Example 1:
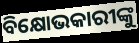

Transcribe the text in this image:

ବିକ୍ଷୋଭକାରୀଙ୍କୁ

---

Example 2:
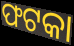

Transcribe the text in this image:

ଫଟକା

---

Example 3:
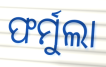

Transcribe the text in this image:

ଫର୍ମୁଲା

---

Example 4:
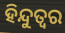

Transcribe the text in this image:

ହିନ୍ଦୁତ୍ବର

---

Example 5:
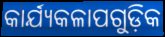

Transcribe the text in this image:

କାର୍ଯ୍ୟକଳାପଗୁଡ଼ିକ